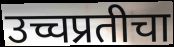
उच्चप्रतीचा